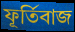
ফূর্তিবাজ